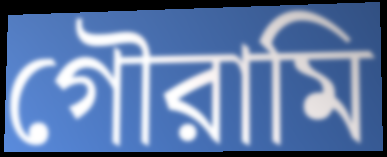
গৌরামি